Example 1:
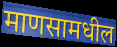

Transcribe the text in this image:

माणसामधील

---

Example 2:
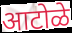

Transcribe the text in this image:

आटोळे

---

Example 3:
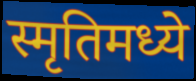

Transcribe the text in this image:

स्मृतिमध्ये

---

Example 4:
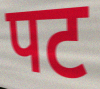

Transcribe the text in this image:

पट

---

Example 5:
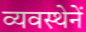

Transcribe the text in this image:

व्यवस्थेनें